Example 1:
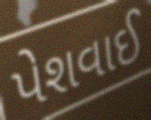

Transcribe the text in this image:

પેશવાઈ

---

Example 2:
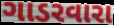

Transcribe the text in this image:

ગાડરવારા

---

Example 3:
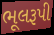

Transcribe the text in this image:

ભૂલરૂપી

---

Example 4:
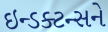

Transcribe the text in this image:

ઇન્ડક્ટન્સને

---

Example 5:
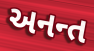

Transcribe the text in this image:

અનન્ત